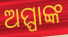
ଅପ୍ପାଙ୍କ